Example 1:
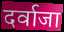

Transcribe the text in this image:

दर्वाजा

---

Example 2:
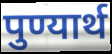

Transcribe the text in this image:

पुण्यार्थ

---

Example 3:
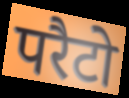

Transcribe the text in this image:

परैटो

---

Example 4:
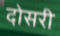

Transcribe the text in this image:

दोसरी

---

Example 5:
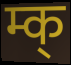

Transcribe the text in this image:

म्क्